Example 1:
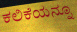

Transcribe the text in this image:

ಕಲಿಕೆಯನ್ನೂ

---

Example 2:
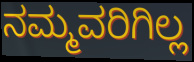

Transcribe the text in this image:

ನಮ್ಮವರಿಗಿಲ್ಲ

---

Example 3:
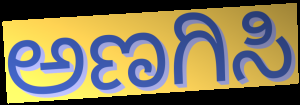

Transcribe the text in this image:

ಅಣಗಿಸಿ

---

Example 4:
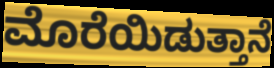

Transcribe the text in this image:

ಮೊರೆಯಿಡುತ್ತಾನೆ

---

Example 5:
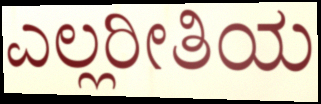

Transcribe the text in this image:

ಎಲ್ಲರೀತಿಯ